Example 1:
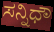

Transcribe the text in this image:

ಸನ್ನಿಧೌ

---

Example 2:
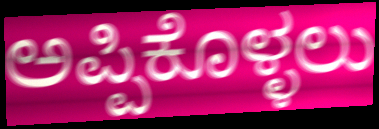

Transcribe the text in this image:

ಅಪ್ಪಿಕೊಳ್ಳಲು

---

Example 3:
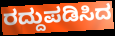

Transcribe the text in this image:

ರದ್ದುಪಡಿಸಿದ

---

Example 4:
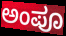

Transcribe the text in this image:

ಅಂಪೂ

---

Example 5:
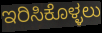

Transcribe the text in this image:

ಇರಿಸಿಕೊಳ್ಳಲು